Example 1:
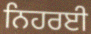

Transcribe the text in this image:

ਨਿਹਰਈ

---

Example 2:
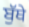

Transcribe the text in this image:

ਬੁੱਥੇ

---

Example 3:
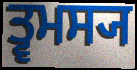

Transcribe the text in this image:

ਤ੍ਵਮਸ੍ਯ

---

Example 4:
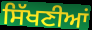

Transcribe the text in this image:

ਸਿੱਖਣੀਆਂ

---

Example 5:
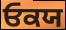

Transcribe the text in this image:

ਓਕਯ